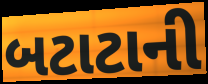
બટાટાની